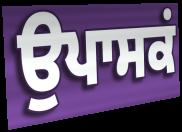
ਉਪਾਸਕਂ